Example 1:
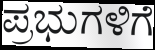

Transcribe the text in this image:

ಪ್ರಭುಗಳಿಗೆ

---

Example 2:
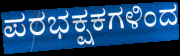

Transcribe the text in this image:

ಪರಭಕ್ಷಕಗಳಿಂದ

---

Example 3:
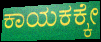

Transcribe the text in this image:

ಕಾಯಕಕ್ಕೇ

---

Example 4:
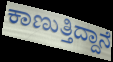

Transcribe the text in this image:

ಕಾಣುತ್ತಿದ್ದಾನೆ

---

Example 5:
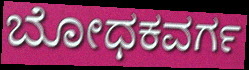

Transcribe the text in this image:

ಬೋಧಕವರ್ಗ